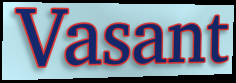
Vasant